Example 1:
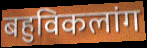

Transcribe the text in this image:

बहुविकलांग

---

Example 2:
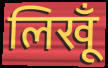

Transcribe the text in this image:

लिखूँ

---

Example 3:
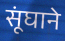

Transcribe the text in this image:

सूंघाने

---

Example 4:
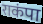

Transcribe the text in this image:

राकंपा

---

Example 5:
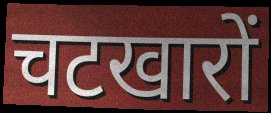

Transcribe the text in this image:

चटखारों